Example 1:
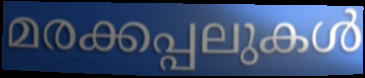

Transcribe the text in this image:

മരക്കപ്പലുകൾ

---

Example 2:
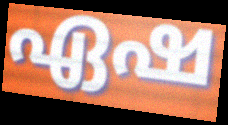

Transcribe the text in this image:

ഏഷ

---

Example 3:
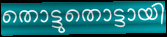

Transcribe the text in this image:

തൊട്ടുതൊട്ടായി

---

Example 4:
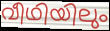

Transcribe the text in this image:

വീഥിയിലും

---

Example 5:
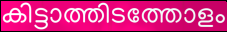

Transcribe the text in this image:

കിട്ടാത്തിടത്തോളം